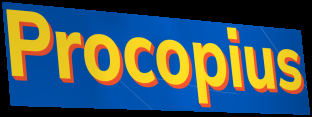
Procopius